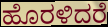
ಹೊರಳಿದರೆ